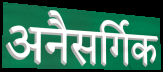
अनैसर्गिक